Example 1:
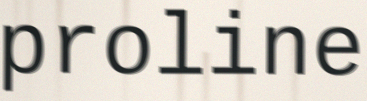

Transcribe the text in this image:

proline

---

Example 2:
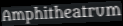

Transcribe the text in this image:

Amphitheatrum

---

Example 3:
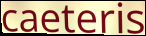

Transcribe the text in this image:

caeteris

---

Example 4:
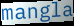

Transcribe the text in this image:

mangla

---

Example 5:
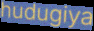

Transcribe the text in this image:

hudugiya